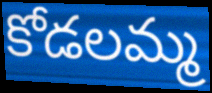
కోడలమ్మ